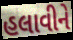
હલાવીને